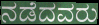
ನಡೆದವರು